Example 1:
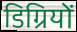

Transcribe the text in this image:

डिग्रियों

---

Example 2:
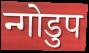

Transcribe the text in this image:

न्गोडुप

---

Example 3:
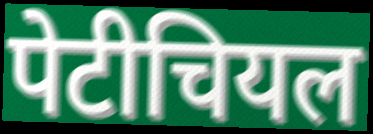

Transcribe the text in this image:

पेटीचियल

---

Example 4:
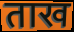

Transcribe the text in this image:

ताख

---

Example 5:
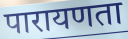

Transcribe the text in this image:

पारायणता